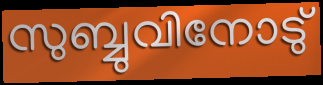
സുബ്ബുവിനോടു്